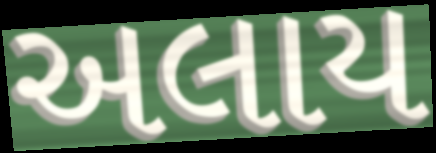
અલાય